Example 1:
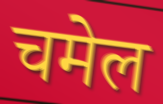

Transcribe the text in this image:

चमेल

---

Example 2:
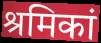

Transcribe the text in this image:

श्रमिकां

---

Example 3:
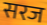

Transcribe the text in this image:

सरज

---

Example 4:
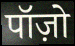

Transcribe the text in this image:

पॉज़ो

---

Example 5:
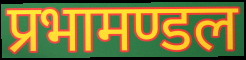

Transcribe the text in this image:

प्रभामण्डल